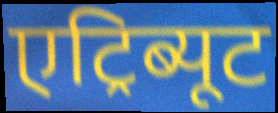
एट्रिब्यूट